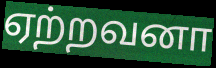
ஏற்றவனா